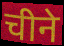
चीने